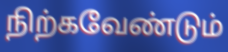
நிற்கவேண்டும்